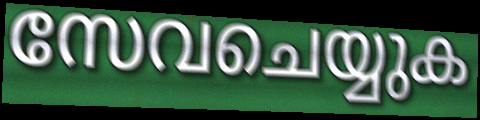
സേവചെയ്യുക